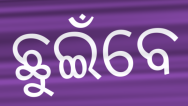
ଛୁଇଁବେ